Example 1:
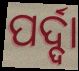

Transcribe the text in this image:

ପର୍ଦ୍ଦା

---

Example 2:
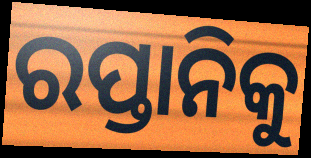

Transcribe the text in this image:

ରପ୍ତାନିକୁ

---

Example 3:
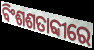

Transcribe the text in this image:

ବିଂଶଶତାବ୍ଦୀରେ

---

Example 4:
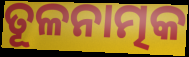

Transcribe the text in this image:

ତୂଳନାତ୍ମକ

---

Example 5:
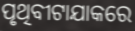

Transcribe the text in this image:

ପୃଥିବୀଟାଯାକରେ